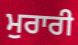
ਮੁਰਾਰੀ